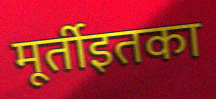
मूर्तीइतका